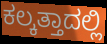
ಕಲ್ಕತ್ತಾದಲ್ಲಿ